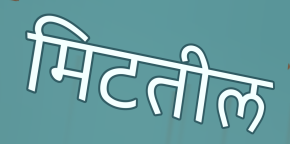
मिटतील